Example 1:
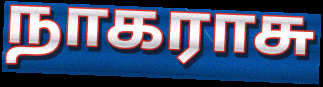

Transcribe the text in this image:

நாகராசு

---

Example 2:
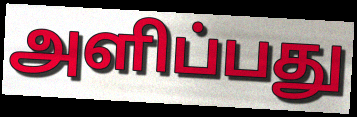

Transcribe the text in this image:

அளிப்பது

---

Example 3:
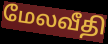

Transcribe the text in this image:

மேலவீதி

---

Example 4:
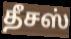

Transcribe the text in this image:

தீசஸ்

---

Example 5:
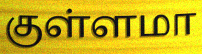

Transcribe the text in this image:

குள்ளமா